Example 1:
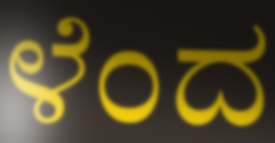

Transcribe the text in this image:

ಳೆಂದ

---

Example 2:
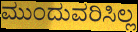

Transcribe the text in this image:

ಮುಂದುವರಿಸಿಲ್ಲ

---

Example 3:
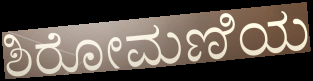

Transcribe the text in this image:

ಶಿರೋಮಣಿಯ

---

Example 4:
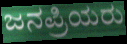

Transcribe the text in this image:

ಜನಪ್ರಿಯರು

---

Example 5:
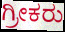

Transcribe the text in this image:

ಗ್ರೀಕರು